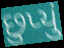
છુપ્યું